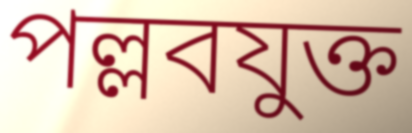
পল্লবযুক্ত